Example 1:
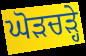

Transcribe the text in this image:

ਘੋੜਚੜ੍ਹੇ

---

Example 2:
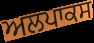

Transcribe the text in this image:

ਅਲਪਾਕਸ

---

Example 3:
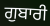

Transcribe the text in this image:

ਗੁਬਾਰੀ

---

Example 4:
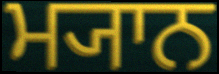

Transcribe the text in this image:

ਮ੍ਯਾਨ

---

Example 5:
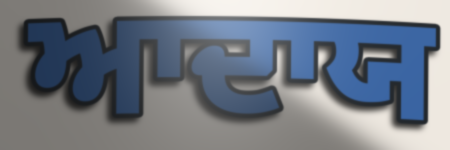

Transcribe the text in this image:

ਆਦਾਯ